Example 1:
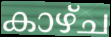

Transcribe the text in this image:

കാഴ്ച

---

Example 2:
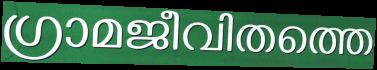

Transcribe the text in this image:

ഗ്രാമജീവിതത്തെ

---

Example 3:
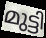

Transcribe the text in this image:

മുട്ടി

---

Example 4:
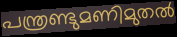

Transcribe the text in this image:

പന്ത്രണ്ടുമണിമുതൽ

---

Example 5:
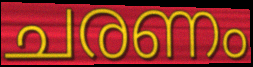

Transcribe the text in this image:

ചരണം